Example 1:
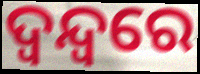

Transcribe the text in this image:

ଦ୍ୱନ୍ଦ୍ବରେ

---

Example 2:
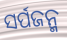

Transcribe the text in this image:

ସର୍ପଜନ୍ମ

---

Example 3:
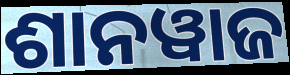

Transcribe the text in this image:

ଶାନୱାଜ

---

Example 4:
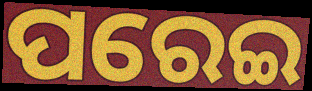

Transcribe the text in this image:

ପରେଇ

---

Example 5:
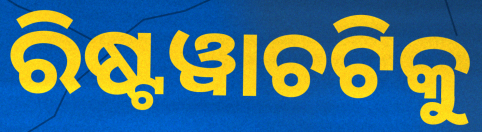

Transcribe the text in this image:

ରିଷ୍ଟୱାଚଟିକୁ